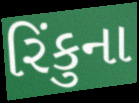
રિંકુના